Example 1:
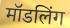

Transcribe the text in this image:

मॉडलिंग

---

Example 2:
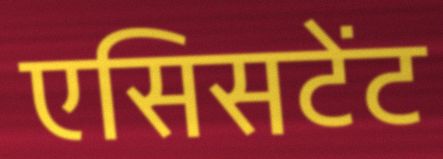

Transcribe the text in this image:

एसिसटेंट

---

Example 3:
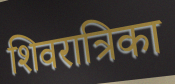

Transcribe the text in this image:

शिवरात्रिका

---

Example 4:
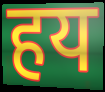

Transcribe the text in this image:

हय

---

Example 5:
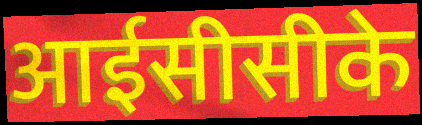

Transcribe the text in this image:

आईसीसीके